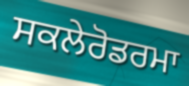
ਸਕਲੇਰੋਡਰਮਾ